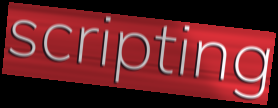
scripting